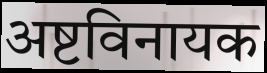
अष्टविनायक